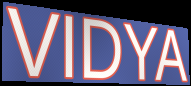
VIDYA